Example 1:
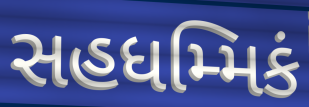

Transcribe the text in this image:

સહધમ્મિકં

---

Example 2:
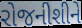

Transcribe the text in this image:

રોજનીશીને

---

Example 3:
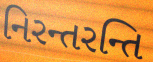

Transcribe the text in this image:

નિરન્તરન્તિ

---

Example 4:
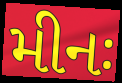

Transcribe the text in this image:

મીનઃ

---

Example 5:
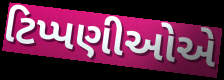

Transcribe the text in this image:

ટિપ્પણીઓએ